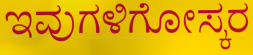
ಇವುಗಳಿಗೋಸ್ಕರ